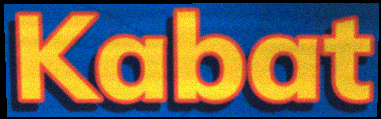
Kabat